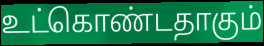
உட்கொண்டதாகும்